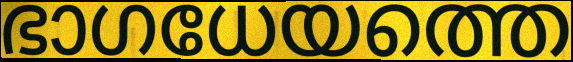
ഭാഗധേയത്തെ